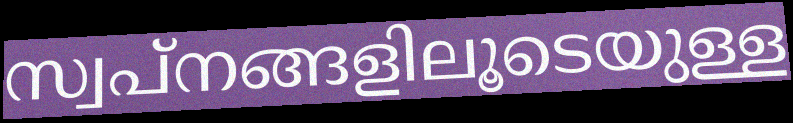
സ്വപ്നങ്ങളിലൂടെയുള്ള